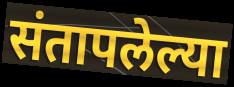
संतापलेल्या